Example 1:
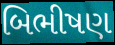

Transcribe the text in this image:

બિભીષણ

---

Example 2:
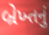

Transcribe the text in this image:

બ્રેખ્તનું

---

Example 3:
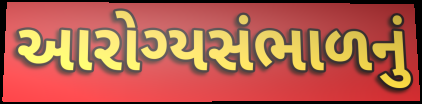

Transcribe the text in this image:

આરોગ્યસંભાળનું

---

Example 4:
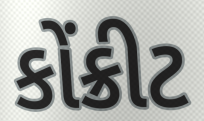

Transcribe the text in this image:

કોંક્રીટ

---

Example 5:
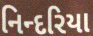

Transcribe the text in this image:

નિન્દરિયા